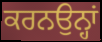
ਕਰਨਉਨ੍ਹਾਂ